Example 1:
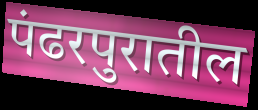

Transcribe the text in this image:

पंढरपुरातील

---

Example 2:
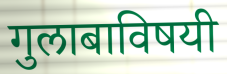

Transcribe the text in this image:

गुलाबाविषयी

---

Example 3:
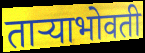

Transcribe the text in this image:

ताऱ्याभोवती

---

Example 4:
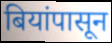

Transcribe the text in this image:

बियांपासून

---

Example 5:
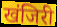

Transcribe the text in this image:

खंजिरी